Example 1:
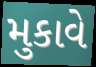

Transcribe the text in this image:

મુકાવે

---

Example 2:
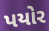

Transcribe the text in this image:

પયોર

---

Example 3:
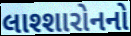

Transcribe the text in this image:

લાશ્શારોનનો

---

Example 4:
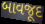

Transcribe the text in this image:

બાવજૂદ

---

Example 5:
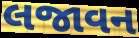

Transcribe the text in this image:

લજાવન